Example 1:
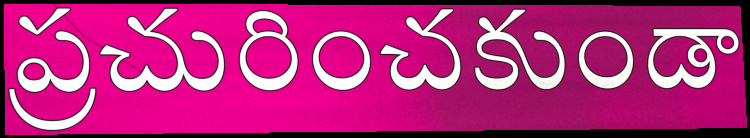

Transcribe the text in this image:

ప్రచురించకుండా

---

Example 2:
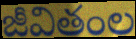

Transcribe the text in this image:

జీవితంల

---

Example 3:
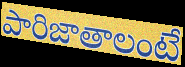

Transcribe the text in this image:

పారిజాతాలంటే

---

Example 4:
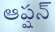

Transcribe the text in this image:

ఆప్షన్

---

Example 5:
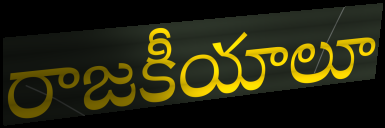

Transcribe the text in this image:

రాజకీయాలూ